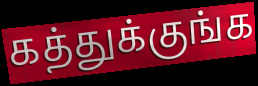
கத்துக்குங்க